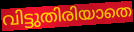
വിട്ടുതിരിയാതെ